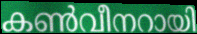
കൺവീനറായി